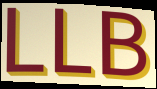
LLB